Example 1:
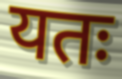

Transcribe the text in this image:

यतः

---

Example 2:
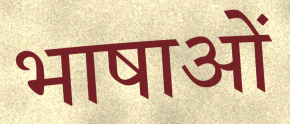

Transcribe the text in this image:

भाषाओें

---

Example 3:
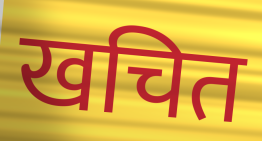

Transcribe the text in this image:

खचित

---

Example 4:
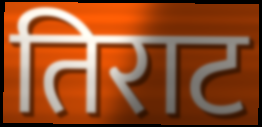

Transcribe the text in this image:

तिराट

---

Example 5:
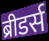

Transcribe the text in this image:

ब्रीडर्स